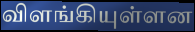
விளங்கியுள்ளன